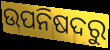
ଉପନିଷଦରୁ